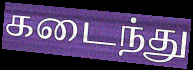
கடைந்து